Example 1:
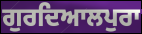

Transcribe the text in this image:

ਗੁਰਦਿਆਲਪੁਰਾ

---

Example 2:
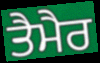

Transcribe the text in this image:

ਤੈਮੈਰ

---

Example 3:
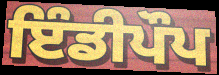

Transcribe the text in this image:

ਇੰਡੀਪੌਪ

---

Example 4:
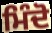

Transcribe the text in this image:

ਮਿੰਦੋ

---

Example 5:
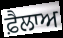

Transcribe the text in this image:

ਫ਼ੈਲਾਅ